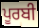
ਪੂਰਬੀ